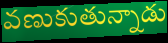
వణుకుతున్నాడు